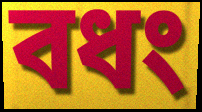
বধং